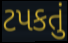
ટપકતું